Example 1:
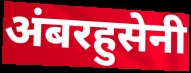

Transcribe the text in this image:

अंबरहुसेनी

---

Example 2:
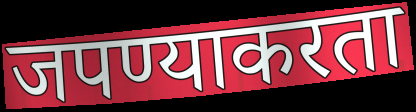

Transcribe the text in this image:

जपण्याकरता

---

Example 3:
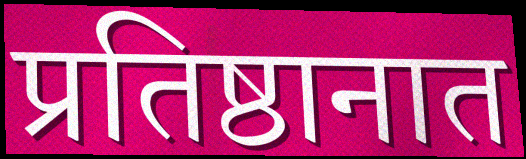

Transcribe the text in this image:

प्रतिष्ठानात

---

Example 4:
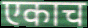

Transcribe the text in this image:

एकाच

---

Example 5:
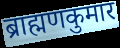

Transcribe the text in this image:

ब्राह्मणकुमार